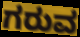
ಗರುವ